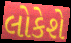
લોકેશે